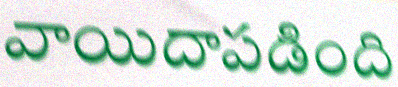
వాయిదాపడింది